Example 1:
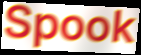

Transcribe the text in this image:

Spook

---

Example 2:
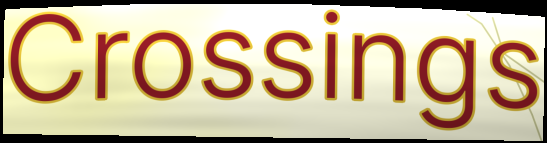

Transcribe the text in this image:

Crossings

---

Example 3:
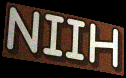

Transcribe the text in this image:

NIIH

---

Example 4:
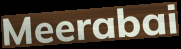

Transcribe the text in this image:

Meerabai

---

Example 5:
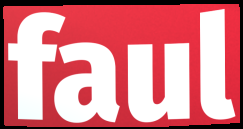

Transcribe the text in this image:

faul